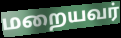
மறையவர்